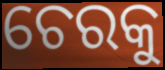
ଚେରକୁ